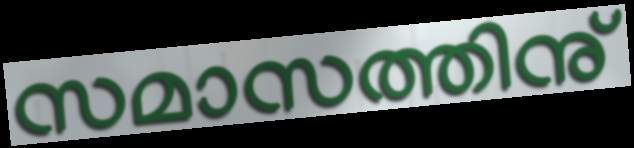
സമാസത്തിനു്